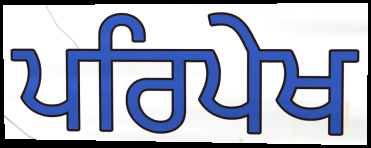
ਪਰਿਪੇਖ